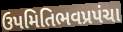
ઉપમિતિભવપ્રપંચા